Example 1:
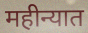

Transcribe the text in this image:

महीन्यात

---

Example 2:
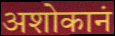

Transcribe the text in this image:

अशोकानं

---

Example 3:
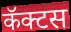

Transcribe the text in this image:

कॅक्टस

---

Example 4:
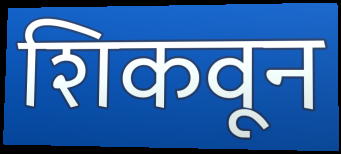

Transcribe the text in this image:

शिकवून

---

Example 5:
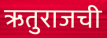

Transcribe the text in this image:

ऋतुराजची